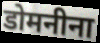
डोमनीना